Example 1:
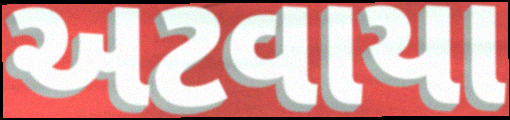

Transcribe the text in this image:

અટવાયા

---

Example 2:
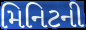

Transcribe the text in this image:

મિનિટની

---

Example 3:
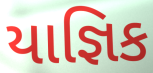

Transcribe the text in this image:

યાજ્ઞિક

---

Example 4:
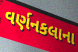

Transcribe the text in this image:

વર્ણનકલાના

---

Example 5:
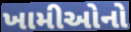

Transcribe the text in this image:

ખામીઓનો